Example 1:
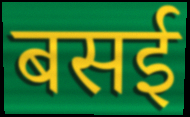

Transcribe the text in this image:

बसई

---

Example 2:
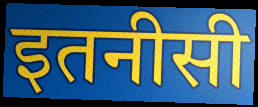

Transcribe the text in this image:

इतनीसी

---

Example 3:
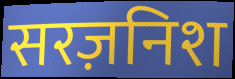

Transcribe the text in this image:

सरज़निश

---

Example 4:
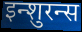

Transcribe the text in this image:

इन्शुरन्स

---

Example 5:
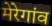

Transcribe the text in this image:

मेरेगांव